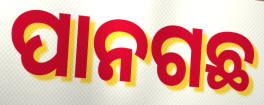
ପାନଗଛ